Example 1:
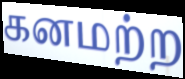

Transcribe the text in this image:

கனமற்ற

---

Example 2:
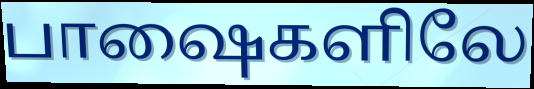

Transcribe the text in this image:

பாஷைகளிலே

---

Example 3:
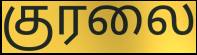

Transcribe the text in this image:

குரலை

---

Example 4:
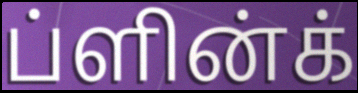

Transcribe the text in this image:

ப்ளின்க்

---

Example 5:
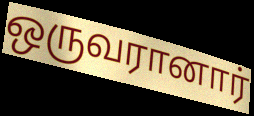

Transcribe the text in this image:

ஒருவரானார்